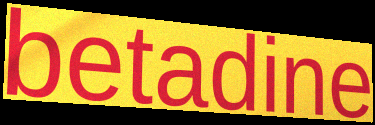
betadine